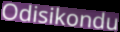
Odisikondu